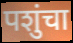
पशुंचा